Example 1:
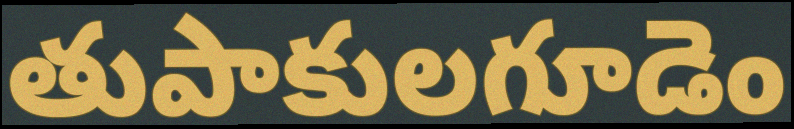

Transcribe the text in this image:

తుపాకులగూడెం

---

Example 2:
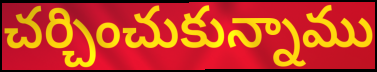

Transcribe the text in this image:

చర్చించుకున్నాము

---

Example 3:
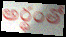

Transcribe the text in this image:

అర్థంతో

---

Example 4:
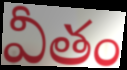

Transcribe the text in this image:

వీతం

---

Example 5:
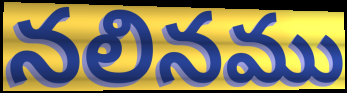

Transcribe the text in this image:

నలినము